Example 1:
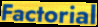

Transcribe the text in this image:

Factorial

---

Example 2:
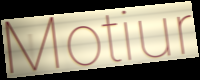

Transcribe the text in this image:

Motiur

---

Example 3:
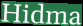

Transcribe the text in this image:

Hidma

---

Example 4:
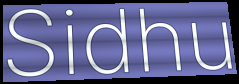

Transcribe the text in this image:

Sidhu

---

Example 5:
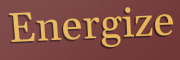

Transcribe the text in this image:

Energize